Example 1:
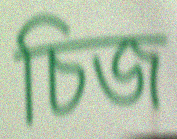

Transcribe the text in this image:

চিজ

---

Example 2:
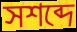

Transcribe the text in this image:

সশব্দে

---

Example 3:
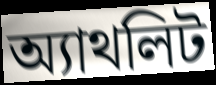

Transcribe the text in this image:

অ্যাথলিট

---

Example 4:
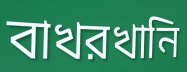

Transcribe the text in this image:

বাখরখানি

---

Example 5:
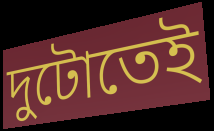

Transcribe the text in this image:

দুটোতেই